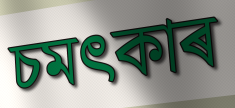
চমৎকাৰ